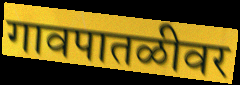
गावपातळीवर